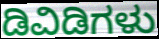
ಡಿವಿಡಿಗಳು